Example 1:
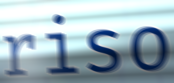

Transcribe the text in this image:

riso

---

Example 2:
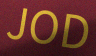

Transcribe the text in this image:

JOD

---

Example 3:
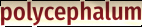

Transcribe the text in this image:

polycephalum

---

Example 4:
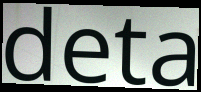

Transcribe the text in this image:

deta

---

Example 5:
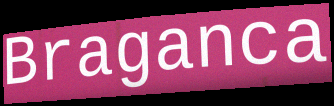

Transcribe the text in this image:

Braganca